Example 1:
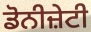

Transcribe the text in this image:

ਡੋਨੀਜ਼ੇਟੀ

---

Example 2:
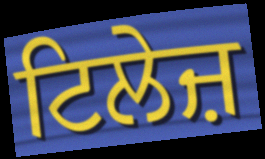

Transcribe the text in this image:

ਟਿਲੇਜ਼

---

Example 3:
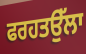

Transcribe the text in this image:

ਫਰਹਤਉੱਲਾ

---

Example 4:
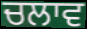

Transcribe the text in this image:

ਚਲਾਵ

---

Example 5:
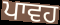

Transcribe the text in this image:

ਪਾਵਹ